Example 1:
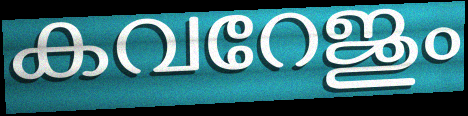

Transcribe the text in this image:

കവറേജും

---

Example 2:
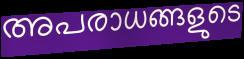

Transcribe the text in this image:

അപരാധങ്ങളുടെ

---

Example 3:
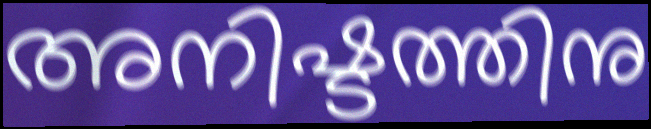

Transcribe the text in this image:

അനിഷ്ടത്തിനു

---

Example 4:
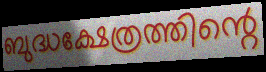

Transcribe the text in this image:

ബുദ്ധക്ഷേത്രത്തിന്റെ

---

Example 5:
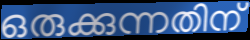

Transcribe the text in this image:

ഒരുക്കുന്നതിന്